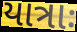
યાત્રાઃ